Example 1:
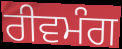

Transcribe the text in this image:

ਰੀਵਮੰਗ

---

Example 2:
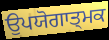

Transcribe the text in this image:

ਉਪਯੋਗਾਤ੍ਮਕ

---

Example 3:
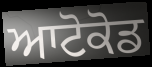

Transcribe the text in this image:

ਆਟੋਕੋਡ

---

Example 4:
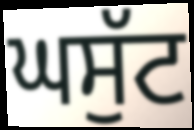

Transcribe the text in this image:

ਘਸੁੱਟ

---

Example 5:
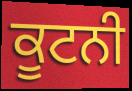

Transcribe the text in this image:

ਕੂਟਨੀ